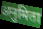
अनुमिता